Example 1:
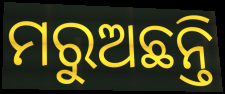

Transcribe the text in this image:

ମରୁଅଛନ୍ତି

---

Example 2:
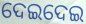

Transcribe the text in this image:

ଦେଇଦେଇ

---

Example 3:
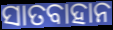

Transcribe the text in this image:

ସାତବାହାନ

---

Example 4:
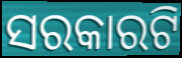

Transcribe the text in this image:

ସରକାରଟି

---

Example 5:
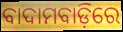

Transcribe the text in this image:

ବାଦାମବାଡ଼ିରେ